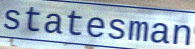
statesman